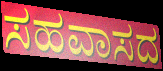
ಸಹವಾಸದ